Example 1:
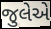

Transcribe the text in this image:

જુલેએ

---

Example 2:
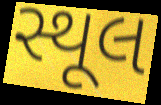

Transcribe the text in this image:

સ્થૂલ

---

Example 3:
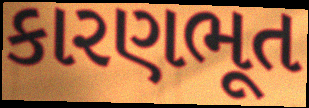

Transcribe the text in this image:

કારણભૂત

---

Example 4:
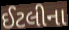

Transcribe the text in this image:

ઈટલીના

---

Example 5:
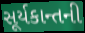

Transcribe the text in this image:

સૂર્યકાન્તની